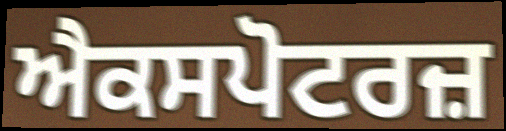
ਐਕਸਪੋਟਰਜ਼